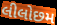
લીલોછમ